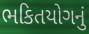
ભકિતયોગનું